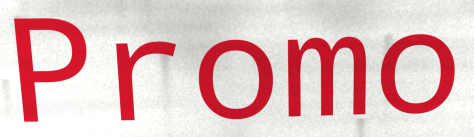
Promo